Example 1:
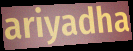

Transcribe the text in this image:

ariyadha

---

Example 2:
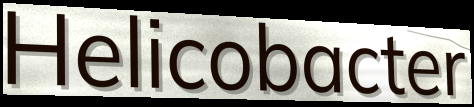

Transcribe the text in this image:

Helicobacter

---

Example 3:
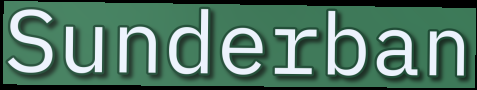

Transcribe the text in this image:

Sunderban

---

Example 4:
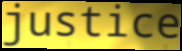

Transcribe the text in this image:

justice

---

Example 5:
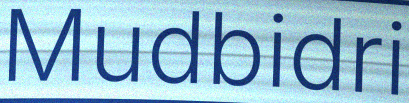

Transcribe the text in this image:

Mudbidri